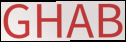
GHAB